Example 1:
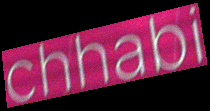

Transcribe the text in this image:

chhabi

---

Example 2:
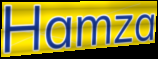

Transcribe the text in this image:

Hamza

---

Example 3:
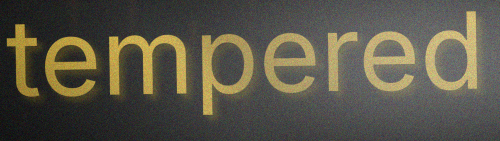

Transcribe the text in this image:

tempered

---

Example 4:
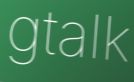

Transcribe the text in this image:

gtalk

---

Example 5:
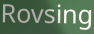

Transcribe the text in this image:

Rovsing